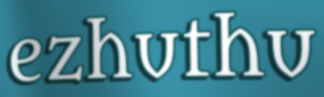
ezhuthu